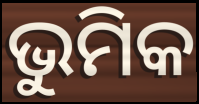
ଭୁମିକ